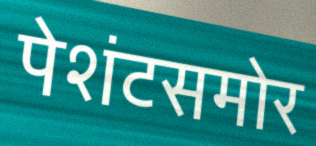
पेशंटसमोर